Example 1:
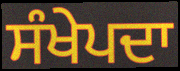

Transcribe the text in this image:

ਸੰਖੇਪਦਾ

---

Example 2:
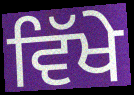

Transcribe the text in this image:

ਵਿੱਖੇ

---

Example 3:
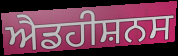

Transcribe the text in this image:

ਐਡਹੀਸ਼ਨਸ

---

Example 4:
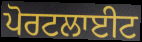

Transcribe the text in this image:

ਪੋਰਟਲਾਈਟ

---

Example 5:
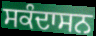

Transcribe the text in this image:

ਸਕੰਦਾਸਨ